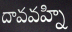
దావవహ్ని